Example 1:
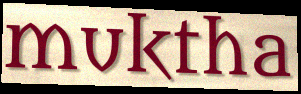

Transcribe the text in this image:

muktha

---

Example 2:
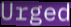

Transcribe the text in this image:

Urged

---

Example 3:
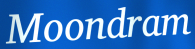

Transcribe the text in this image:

Moondram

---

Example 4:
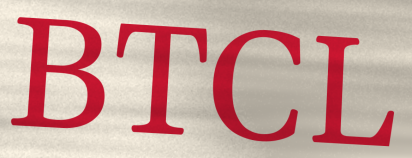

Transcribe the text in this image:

BTCL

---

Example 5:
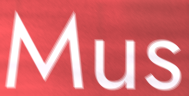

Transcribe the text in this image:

Mus